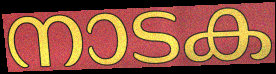
നാടക